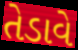
તેડાવે